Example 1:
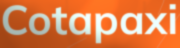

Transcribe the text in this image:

Cotapaxi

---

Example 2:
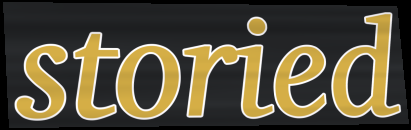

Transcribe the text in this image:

storied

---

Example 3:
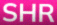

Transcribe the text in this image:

SHR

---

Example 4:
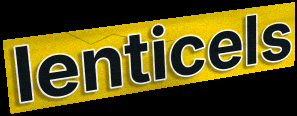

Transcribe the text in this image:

lenticels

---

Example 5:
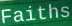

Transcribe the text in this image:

Faiths